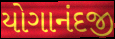
યોગાનંદજી